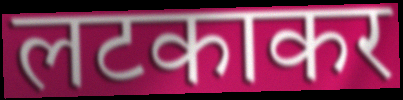
लटकाकर